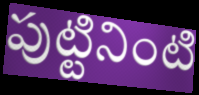
పుట్టినింటి